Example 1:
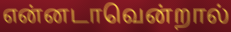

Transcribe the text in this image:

என்னடாவென்றால்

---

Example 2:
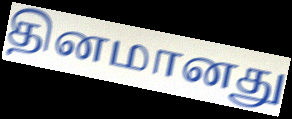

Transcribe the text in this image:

தினமானது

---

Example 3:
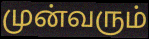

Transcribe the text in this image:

முன்வரும்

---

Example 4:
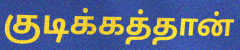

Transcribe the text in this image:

குடிக்கத்தான்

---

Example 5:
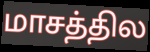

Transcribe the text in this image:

மாசத்தில